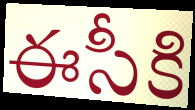
ఈసీకి